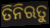
ତିନିଋତୁ